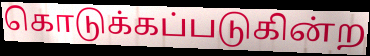
கொடுக்கப்படுகின்ற